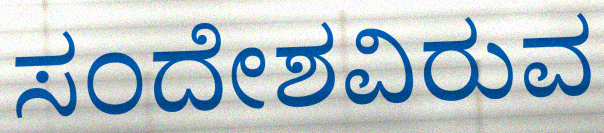
ಸಂದೇಶವಿರುವ